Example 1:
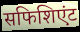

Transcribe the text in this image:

सफिशिएंट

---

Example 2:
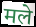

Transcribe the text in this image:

मले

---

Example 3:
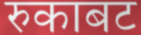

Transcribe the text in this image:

रुकाबट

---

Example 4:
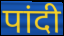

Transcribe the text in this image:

पांदी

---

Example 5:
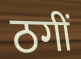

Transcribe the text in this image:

ठगीं